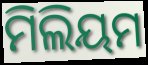
ମିଲିୟମ